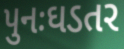
પુનઃઘડતર